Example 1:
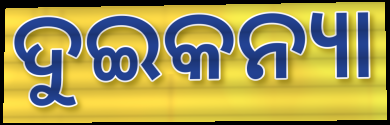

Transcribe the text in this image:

ଦୁଇକନ୍ୟା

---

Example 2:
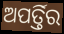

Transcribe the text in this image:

ଅପର୍ତ୍ତିର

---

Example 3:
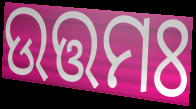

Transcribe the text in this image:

ଉତ୍ତମଃ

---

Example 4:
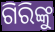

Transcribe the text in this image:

ଗିରିଙ୍କୁ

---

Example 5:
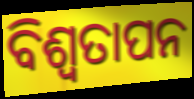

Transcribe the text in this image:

ବିଶ୍ବତାପନ